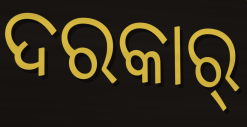
ଦରକାର୍